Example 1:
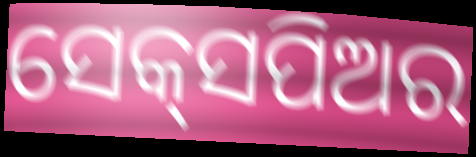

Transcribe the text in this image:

ସେକ୍‌ସପିଅର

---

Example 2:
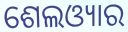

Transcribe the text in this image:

ଶେଲଓ୍ୟାର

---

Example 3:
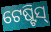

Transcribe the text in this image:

ଟେଷ୍ଟିସ୍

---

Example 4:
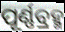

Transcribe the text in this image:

ପୂର୍ଣ୍ଣବ୍ରହ୍ମ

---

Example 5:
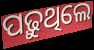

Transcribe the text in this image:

ପଢ଼ୁଥିଲେ